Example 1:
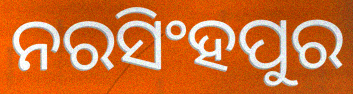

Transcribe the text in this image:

ନରସିଂହପୁର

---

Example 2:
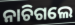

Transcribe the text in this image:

ନାଚିଗଲେ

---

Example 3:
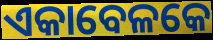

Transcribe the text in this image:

ଏକାବେଳକେ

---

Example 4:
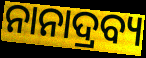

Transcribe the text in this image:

ନାନାଦ୍ରବ୍ୟ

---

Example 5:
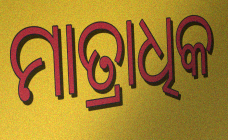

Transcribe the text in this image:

ମାତ୍ରାଧିକ